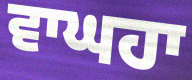
ਵਾਘਹਾ